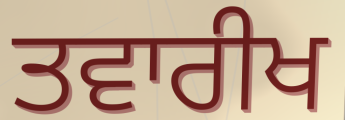
ਤਵਾਰੀਖ